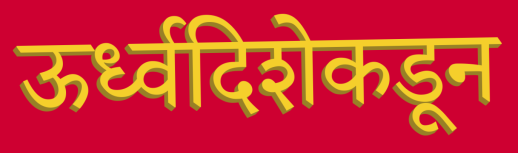
ऊर्ध्वदिशेकडून